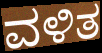
ವಳಿತ